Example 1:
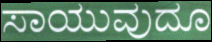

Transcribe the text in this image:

ಸಾಯುವುದೂ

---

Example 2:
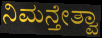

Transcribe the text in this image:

ನಿಮನ್ತೇತ್ವಾ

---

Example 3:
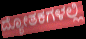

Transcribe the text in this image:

ದ್ಯೋತಕಗಳಲ್ಲಿ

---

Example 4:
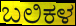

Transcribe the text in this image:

ಬಲಿಕಳ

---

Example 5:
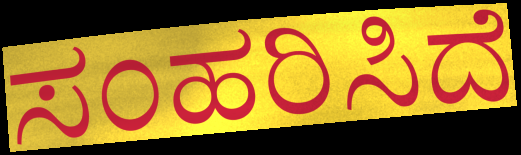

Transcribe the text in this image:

ಸಂಹರಿಸಿದೆ